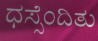
ಧಸ್ಸೆಂದಿತು